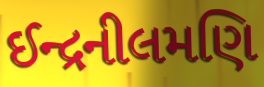
ઈન્દ્રનીલમણિ